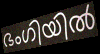
ഭംഗിയിൽ